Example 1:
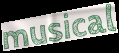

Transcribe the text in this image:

musical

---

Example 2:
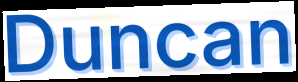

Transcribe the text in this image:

Duncan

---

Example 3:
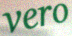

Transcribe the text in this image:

vero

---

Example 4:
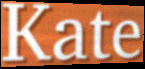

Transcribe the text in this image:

Kate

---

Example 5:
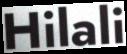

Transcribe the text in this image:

Hilali